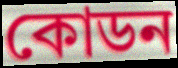
কোডন